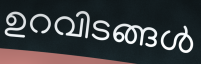
ഉറവിടങ്ങൾ